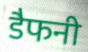
डैफनी